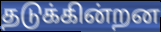
தடுக்கின்றன